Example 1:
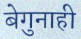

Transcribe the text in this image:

बेगुनाही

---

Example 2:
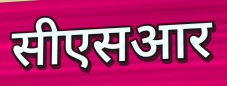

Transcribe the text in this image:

सीएसआर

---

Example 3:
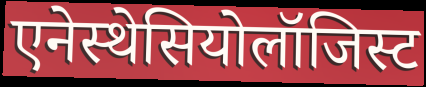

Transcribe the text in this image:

एनेस्थेसियोलॉजिस्ट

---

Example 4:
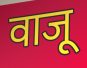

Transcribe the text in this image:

वाजू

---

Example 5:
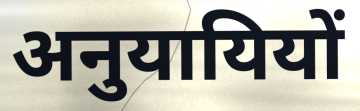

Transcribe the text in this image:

अनुयायियों